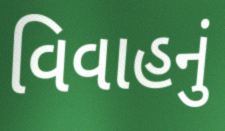
વિવાહનું